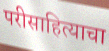
परीसाहित्याचा